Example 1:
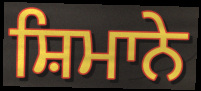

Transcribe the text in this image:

ਸ਼ਿਮਾਨੇ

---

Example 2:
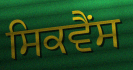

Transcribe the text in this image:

ਸਿਕਵੈਂਸ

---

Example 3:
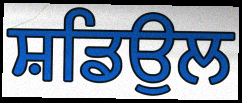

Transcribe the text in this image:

ਸ਼ਡਿਉਲ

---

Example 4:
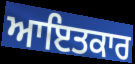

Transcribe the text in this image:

ਆਇਤਕਾਰ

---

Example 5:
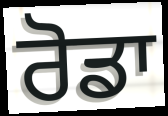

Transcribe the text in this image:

ਰੋਡਾ